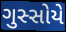
ગુસ્સોયે